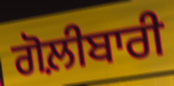
ਗੋਲ਼ੀਬਾਰੀ